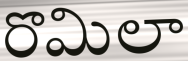
రొమిలా